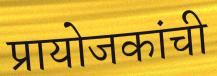
प्रायोजकांची